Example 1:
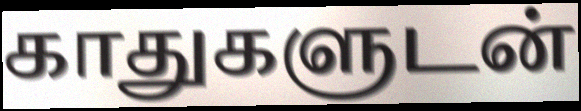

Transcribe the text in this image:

காதுகளுடன்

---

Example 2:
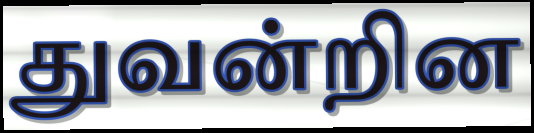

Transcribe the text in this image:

துவன்றின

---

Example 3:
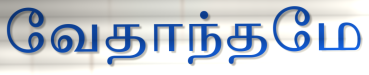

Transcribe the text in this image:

வேதாந்தமே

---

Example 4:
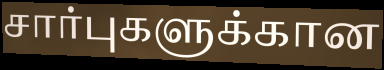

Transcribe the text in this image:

சார்புகளுக்கான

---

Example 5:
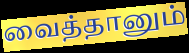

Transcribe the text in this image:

வைத்தானும்